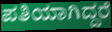
ಪತಿಯಾಗಿದ್ದರೆ